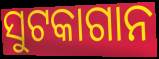
ସୁଟକାଗାନ